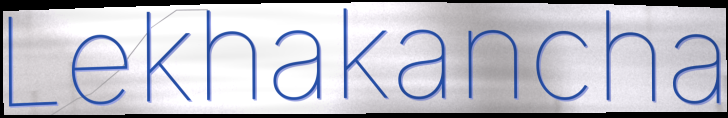
Lekhakancha